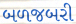
બળજબરી